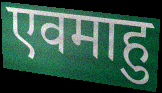
एवमाहु